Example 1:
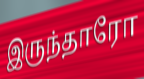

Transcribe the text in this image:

இருந்தாரோ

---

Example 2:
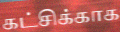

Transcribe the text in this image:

கட்சிக்காக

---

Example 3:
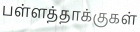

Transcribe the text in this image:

பள்ளத்தாக்குகள்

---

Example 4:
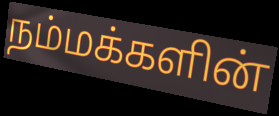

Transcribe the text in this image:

நம்மக்களின்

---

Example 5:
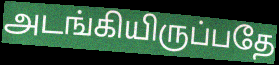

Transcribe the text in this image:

அடங்கியிருப்பதே